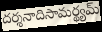
దర్శనాదిసామర్థ్యమ్